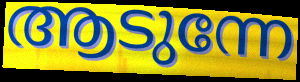
ആടുന്നേ